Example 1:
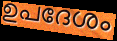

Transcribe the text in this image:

ഉപദേശം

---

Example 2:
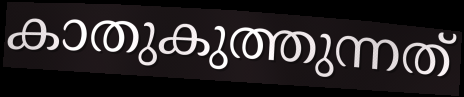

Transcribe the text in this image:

കാതുകുത്തുന്നത്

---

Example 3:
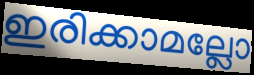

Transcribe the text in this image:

ഇരിക്കാമല്ലോ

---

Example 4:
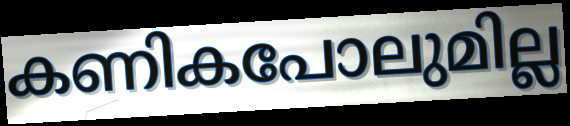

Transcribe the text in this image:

കണികപോലുമില്ല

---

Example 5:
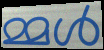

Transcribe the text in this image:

മ്മൾ